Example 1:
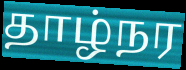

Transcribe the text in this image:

தாழ்நர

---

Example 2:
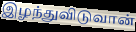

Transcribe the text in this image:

இழந்துவிடுவான்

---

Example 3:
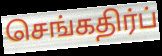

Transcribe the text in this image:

செங்கதிர்ப்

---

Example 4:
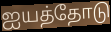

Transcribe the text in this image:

ஐயத்தோடு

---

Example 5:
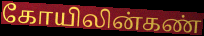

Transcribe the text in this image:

கோயிலின்கண்